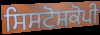
ਸਿਸਟੋਸਕੋਪੀ